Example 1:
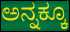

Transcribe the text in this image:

ಅನ್ನಕ್ಕೂ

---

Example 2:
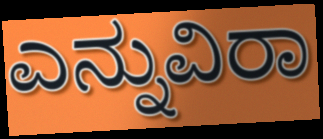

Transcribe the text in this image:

ಎನ್ನುವಿರಾ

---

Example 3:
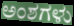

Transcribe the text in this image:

ಅಂಶಗಳು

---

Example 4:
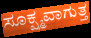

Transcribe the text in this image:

ಸೂಕ್ಷ್ಮವಾಗುತ್ತ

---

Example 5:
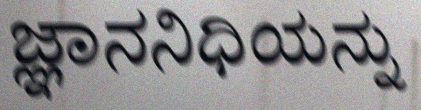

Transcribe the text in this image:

ಜ್ಞಾನನಿಧಿಯನ್ನು